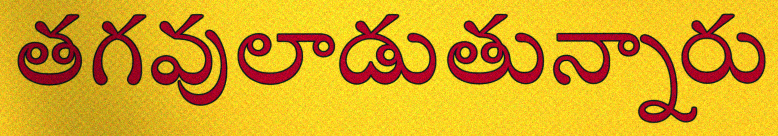
తగవులాడుతున్నారు